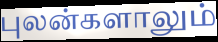
புலன்களாலும்